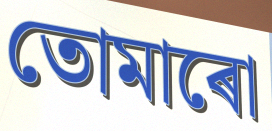
তোমাৰো